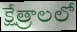
క్షేత్రాలలో